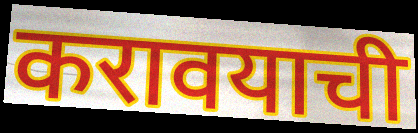
करावयाची